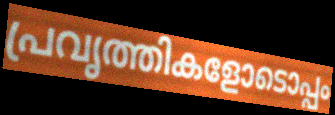
പ്രവൃത്തികളോടൊപ്പം